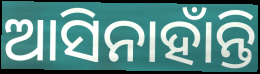
ଆସିନାହାଁନ୍ତି